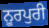
ਨੂਰਪੁਰੀ